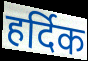
हर्दिक